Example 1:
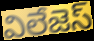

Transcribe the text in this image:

విలేజెస్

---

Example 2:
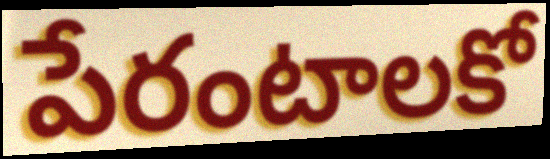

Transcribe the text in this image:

పేరంటాలకో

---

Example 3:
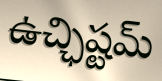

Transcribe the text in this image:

ఉచ్ఛిష్టమ్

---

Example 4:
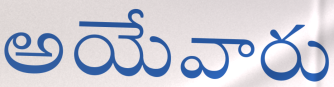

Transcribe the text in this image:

అయేవారు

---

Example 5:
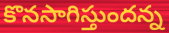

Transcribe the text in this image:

కొనసాగిస్తుందన్న